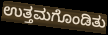
ಉತ್ತಮಗೊಂಡಿತು